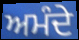
ਅਮੰਦੇ